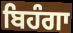
ਬਿਹੰਗਾ